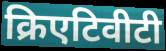
क्रिएटिवीटी